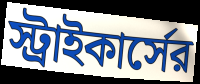
স্ট্রাইকার্সের